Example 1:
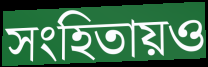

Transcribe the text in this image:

সংহিতায়ও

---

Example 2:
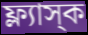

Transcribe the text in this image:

ফ্ল্যাস্‌ক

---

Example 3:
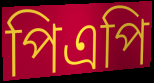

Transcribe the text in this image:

পিএপি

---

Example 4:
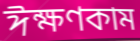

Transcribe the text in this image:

ঈক্ষণকাম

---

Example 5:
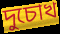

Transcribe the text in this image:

দুচোখ